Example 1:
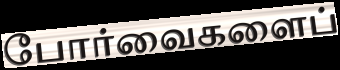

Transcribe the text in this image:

போர்வைகளைப்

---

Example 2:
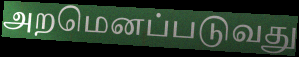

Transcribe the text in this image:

அறமெனப்படுவது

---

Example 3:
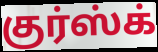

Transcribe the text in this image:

குர்ஸ்க்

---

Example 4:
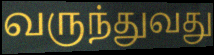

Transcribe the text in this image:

வருந்துவது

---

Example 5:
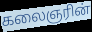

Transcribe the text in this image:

கலைஞரின்